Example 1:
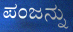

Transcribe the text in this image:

ಪಂಜನ್ನು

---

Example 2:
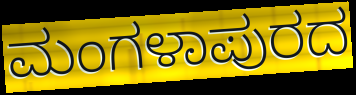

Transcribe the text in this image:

ಮಂಗಳಾಪುರದ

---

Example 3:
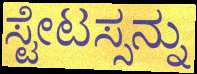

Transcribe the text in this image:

ಸ್ಟೇಟಸ್ಸನ್ನು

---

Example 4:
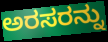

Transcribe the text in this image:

ಅರಸರನ್ನು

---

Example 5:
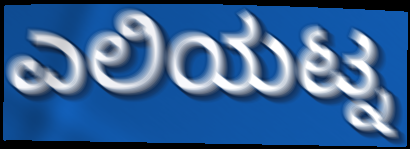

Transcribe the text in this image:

ಎಲಿಯಟ್ನ